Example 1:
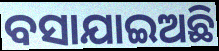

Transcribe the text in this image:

ବସାଯାଇଅଛି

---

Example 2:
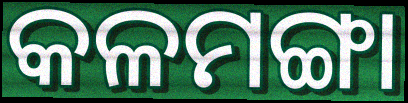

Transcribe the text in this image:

କଳମଙ୍ଗା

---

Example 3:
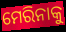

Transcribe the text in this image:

ମେରିନାକୁ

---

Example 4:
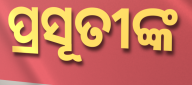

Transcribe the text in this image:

ପ୍ରସୂତୀଙ୍କ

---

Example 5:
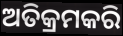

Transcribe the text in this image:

ଅତିକ୍ରମକରି